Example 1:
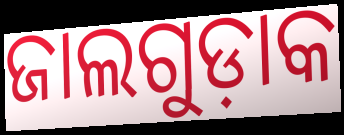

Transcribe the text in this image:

ଜାଲଗୁଡ଼ାକ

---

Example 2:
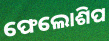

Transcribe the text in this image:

ଫେଲୋଶିପ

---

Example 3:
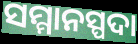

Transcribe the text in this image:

ସମ୍ମାନସ୍ପଦା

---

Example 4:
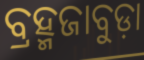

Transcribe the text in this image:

ବ୍ରହ୍ମଜାବୁଡ଼ା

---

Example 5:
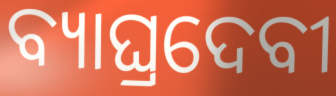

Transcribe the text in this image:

ବ୍ୟାଘ୍ରଦେବୀ